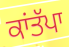
ਕਾਂਤੱਪਾ